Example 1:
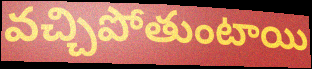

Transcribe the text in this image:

వచ్చిపోతుంటాయి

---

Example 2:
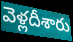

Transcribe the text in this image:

వెళ్లదీశారు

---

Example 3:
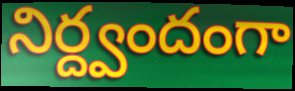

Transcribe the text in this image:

నిర్ద్వందంగా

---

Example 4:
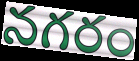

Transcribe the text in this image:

నగరం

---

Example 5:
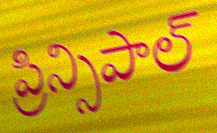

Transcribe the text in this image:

ప్రిన్సిపాల్